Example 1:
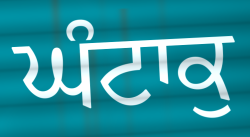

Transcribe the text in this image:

ਘੰਟਾਕੁ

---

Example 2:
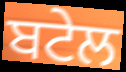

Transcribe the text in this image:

ਬਟੇਲ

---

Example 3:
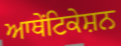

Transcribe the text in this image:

ਆਥੇਂਟਿਕੇਸ਼ਨ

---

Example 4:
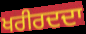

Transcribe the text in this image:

ਖਰੀਰਦਦਾ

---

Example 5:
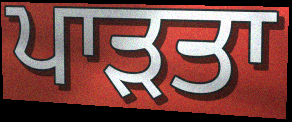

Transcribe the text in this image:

ਪਾੜਤਾ